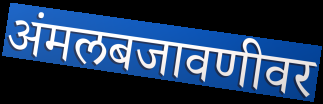
अंमलबजावणीवर